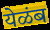
येळंब